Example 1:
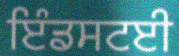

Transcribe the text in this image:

ਇੰਡਸਟਈ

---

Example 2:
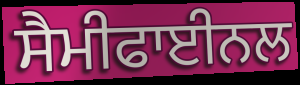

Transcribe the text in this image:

ਸੈਮੀਫਾਈਨਲ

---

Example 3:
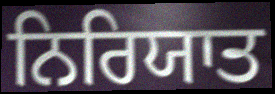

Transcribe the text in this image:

ਨਿਰਿਯਾਤ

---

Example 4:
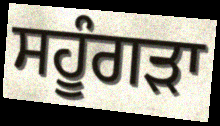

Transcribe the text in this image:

ਸਹੂੰਗੜਾ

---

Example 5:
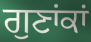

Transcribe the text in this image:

ਗੁਣਾਂਕਾਂ